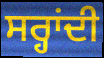
ਸਰ੍ਹਾਂਦੀ